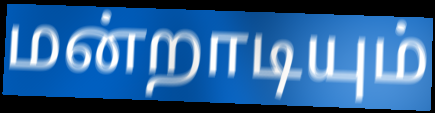
மன்றாடியும்